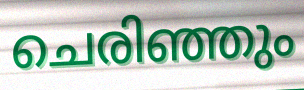
ചെരിഞ്ഞും